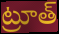
ట్రూత్